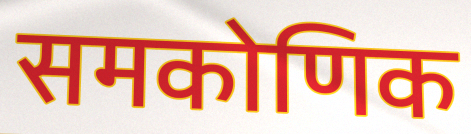
समकोणिक